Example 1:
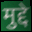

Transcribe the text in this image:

मुद्दे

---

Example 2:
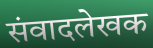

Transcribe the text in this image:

संवादलेखक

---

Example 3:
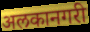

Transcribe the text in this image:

अलकानगरी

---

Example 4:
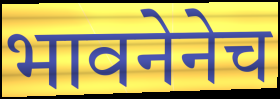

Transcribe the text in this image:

भावनेनेच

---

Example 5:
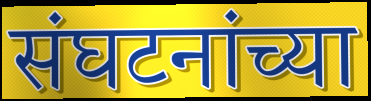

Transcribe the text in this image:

संघटनांच्या